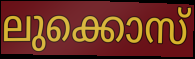
ലുക്കൊസ്